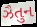
ઝૈતુન